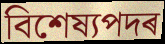
বিশেষ্যপদৰ